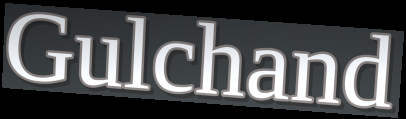
Gulchand